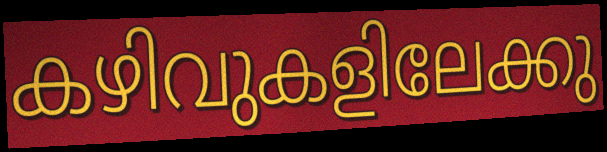
കഴിവുകളിലേക്കു